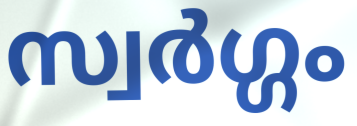
സ്വർഗ്ഗം